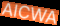
AICWA